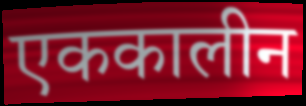
एककालीन